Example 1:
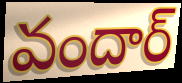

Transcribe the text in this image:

వందార్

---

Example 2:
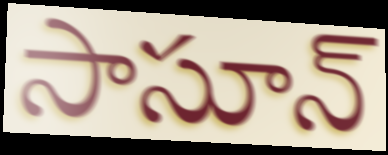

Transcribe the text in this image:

సాసూన్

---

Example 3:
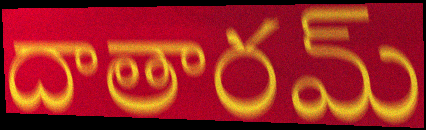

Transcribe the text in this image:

దాతారమ్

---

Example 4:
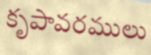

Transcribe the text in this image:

కృపావరములు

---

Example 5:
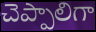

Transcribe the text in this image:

చెప్పాలిగా